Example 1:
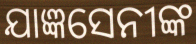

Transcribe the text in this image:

ଯାଜ୍ଞସେନୀଙ୍କ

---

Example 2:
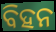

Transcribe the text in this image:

ବିହନ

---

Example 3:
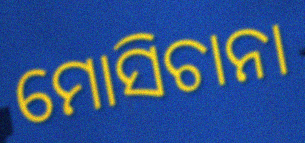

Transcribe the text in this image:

ମୋସିଚାନା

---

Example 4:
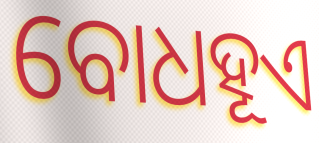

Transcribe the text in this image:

ବୋଧହୂଏ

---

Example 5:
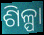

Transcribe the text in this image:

ଶିଳ୍ପା